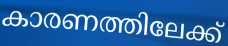
കാരണത്തിലേക്ക്